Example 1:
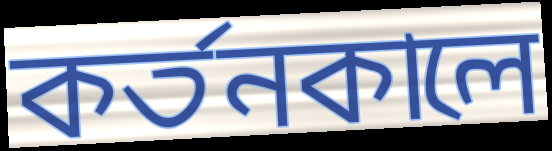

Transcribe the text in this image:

কর্তনকালে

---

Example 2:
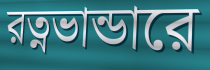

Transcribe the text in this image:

রত্নভান্ডারে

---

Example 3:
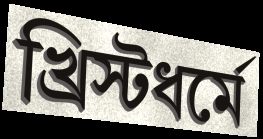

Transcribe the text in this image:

খ্রিস্টধর্মে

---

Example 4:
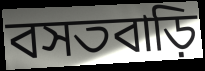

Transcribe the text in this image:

বসতবাড়ি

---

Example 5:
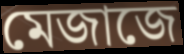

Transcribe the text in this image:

মেজাজে